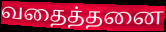
வதைத்தனை